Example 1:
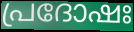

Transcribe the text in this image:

പ്രദോഷഃ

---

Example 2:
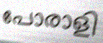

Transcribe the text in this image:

പോരാളി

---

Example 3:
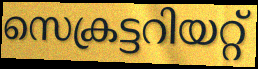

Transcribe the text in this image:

സെക്രട്ടറിയറ്റ്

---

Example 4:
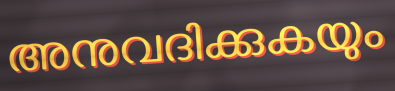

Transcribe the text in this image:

അനുവദിക്കുകയും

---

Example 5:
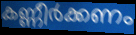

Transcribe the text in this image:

കണ്ണീർക്കണം